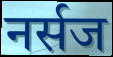
नर्सज